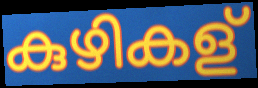
കുഴികള്